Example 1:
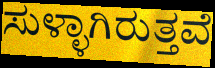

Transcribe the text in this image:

ಸುಳ್ಳಾಗಿರುತ್ತವೆ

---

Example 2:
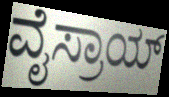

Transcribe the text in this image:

ವೈಸ್ರಾಯ್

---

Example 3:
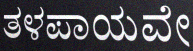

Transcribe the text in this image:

ತಳಪಾಯವೇ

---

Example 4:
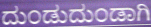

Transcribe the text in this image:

ದುಂಡುದುಂಡಾಗಿ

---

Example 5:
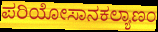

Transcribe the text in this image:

ಪರಿಯೋಸಾನಕಲ್ಯಾಣಂ